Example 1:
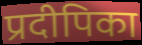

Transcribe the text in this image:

प्रदीपिका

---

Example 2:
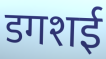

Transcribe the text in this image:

डगशई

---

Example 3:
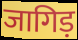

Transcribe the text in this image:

जागिड़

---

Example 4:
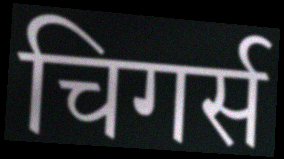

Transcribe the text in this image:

चिगर्स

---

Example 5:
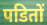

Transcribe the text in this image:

पडितों